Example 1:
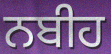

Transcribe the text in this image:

ਨਬੀਹ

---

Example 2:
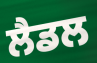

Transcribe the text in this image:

ਲੈਡਲ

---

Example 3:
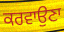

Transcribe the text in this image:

ਕਰਵਾਉਣਾ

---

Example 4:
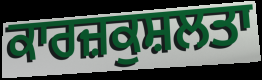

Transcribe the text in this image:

ਕਾਰਜ਼ਕੁਸ਼ਲਤਾ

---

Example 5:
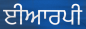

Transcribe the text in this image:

ਈਆਰਪੀ